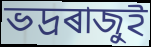
ভদ্ৰৰাজুই